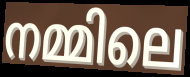
നമ്മിലെ